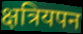
क्षत्रियपन